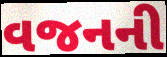
વજનની